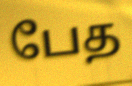
பேத